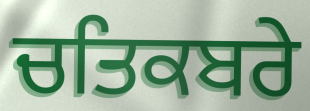
ਚਤਿਕਬਰੇ